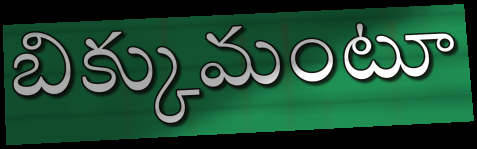
బిక్కుమంటూ